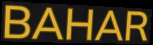
BAHAR